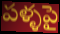
పళ్ళపై